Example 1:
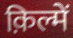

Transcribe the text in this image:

क़िल्में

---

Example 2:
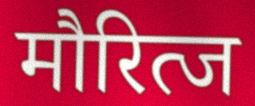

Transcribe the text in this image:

मौरित्ज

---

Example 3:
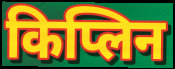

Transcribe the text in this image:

किप्लिन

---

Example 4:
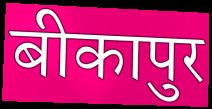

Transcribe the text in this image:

बीकापुर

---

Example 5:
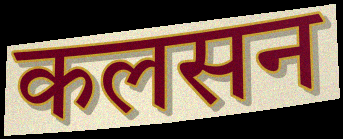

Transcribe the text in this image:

कलसन